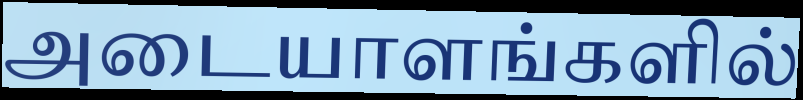
அடையாளங்களில்